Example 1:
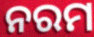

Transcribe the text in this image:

ନରମ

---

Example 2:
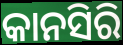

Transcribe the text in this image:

କାନସିରି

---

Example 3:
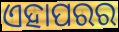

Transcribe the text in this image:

ଏହାପରର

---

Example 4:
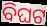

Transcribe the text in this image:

ବିଘଟ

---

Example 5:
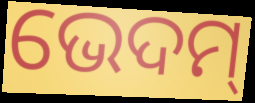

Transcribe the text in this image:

ଭେଦମ୍